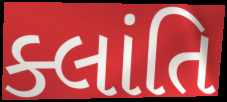
ક્લાંતિ